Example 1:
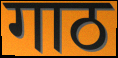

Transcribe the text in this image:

गाठ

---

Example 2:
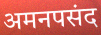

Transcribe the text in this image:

अमनपसंद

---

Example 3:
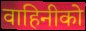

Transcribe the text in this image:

वाहिनीको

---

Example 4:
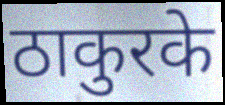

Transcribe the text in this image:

ठाकुरके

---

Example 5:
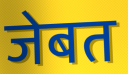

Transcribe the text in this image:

जेबत